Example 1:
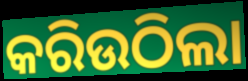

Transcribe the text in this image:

କରିଉଠିଲା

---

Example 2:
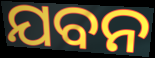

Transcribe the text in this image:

ଯବନ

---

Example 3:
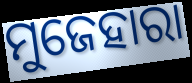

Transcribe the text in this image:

ମୁଜେହାରା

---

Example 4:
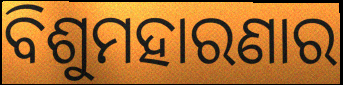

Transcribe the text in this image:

ବିଶୁମହାରଣାର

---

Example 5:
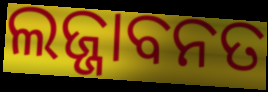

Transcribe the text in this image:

ଲଜ୍ଜାବନତ